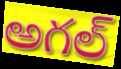
అగల్